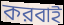
করবাই